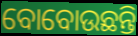
ବୋବୋଉଛନ୍ତି